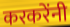
करकरेंनी